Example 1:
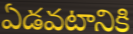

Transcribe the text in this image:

ఏడవటానికి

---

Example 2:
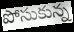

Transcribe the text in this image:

పోసుకున్న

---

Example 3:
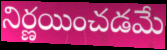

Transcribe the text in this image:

నిర్ణయించడమే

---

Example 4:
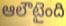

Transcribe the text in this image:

ఆలౌటైంది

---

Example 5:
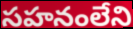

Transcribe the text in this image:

సహనంలేని